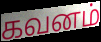
கவனம்